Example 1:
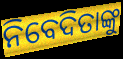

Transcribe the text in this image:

ନିବେଦିତାଙ୍କୁ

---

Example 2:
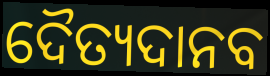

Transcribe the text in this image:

ଦୈତ୍ୟଦାନବ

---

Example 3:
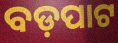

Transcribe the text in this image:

ବଡ଼ପାଟ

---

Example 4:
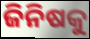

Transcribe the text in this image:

ଜିନିଷକୁ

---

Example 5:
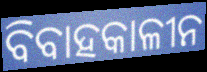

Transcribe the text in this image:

ବିବାହକାଳୀନ